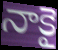
నాకై